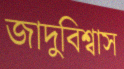
জাদুবিশ্বাস